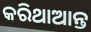
କରିଥାଆନ୍ତ